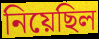
নিয়েছিল